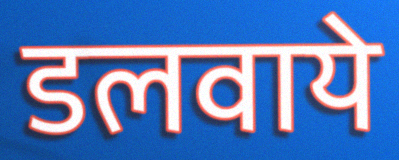
डलवाये